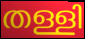
തള്ളി